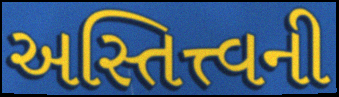
અસ્તિત્ત્વની